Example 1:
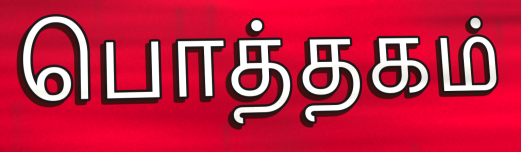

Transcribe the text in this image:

பொத்தகம்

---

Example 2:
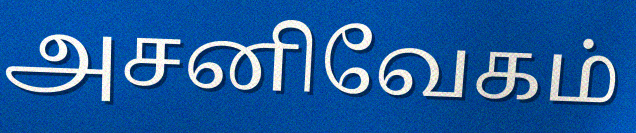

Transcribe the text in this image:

அசனிவேகம்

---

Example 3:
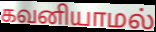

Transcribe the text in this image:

கவனியாமல்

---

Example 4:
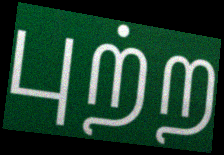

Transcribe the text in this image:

புற்ற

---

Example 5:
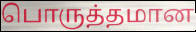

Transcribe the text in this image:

பொருத்தமான